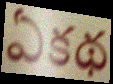
ఏకథ